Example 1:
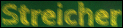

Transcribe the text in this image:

Streicher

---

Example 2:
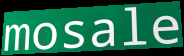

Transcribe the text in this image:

mosale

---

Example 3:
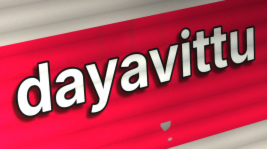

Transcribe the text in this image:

dayavittu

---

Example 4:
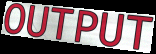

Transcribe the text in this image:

OUTPUT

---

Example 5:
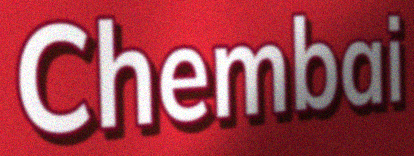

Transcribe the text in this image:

Chembai